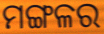
ମଙ୍ଗଳର